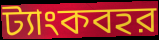
ট্যাংকবহর